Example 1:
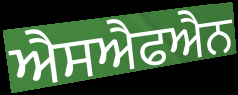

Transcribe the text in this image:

ਐਸਐਫਐਨ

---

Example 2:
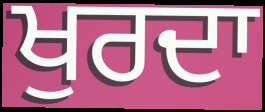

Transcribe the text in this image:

ਖੁਰਦਾ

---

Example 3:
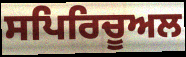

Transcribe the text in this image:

ਸਪਿਰਿਚੂਅਲ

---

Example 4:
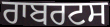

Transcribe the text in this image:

ਰਾਬਰਟਸ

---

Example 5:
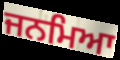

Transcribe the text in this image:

ਜਨਮਿਆ